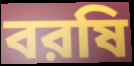
বরষি